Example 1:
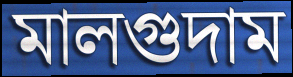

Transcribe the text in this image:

মালগুদাম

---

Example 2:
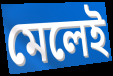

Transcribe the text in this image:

মেলেই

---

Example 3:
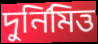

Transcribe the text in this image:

দুর্নিমিত্ত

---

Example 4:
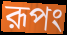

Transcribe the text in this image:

রূপং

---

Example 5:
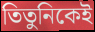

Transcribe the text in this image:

তিতুনিকেই